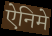
ऐनिमे